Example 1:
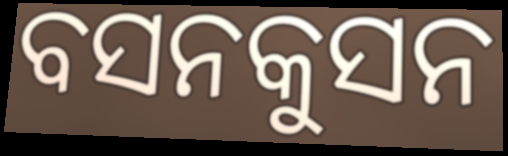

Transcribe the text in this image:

ବସନକୁସନ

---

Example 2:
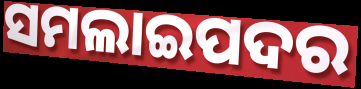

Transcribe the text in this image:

ସମଲାଇପଦର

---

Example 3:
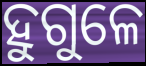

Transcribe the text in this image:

ହୁଗୁଳେ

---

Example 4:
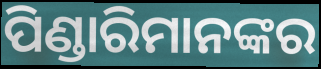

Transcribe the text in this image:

ପିଣ୍ଡାରିମାନଙ୍କର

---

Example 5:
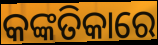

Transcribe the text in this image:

କଙ୍କତିକାରେ